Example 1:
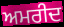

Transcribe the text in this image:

ਅਮਰੀਦ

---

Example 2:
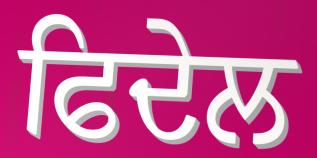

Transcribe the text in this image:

ਫਿਦੇਲ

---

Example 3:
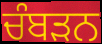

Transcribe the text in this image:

ਚੰਬੜਨ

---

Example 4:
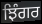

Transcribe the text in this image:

ਝਿੰਗਰ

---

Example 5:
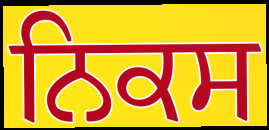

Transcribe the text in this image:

ਨਿਕਸ